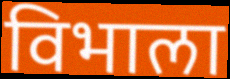
विभाला